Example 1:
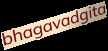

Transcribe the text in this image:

bhagavadgita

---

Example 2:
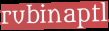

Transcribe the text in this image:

rubinaptl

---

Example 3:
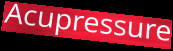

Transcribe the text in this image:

Acupressure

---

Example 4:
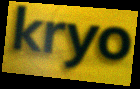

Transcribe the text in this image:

kryo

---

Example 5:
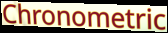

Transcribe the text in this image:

Chronometric